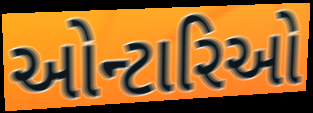
ઓન્ટારિઓ